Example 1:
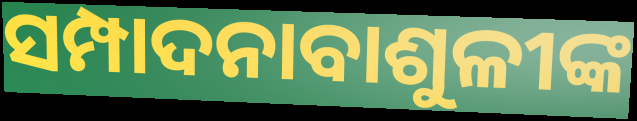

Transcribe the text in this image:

ସମ୍ପାଦନାବାଶୁଳୀଙ୍କ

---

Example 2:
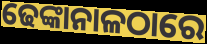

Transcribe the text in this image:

ଢେଙ୍କାନାଳଠାରେ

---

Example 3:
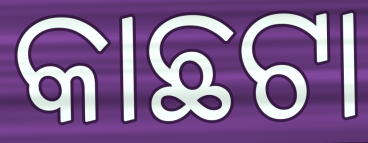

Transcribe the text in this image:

କାଛଟା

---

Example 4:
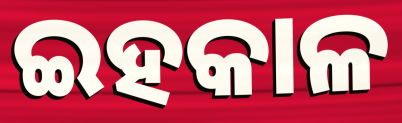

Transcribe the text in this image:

ଇହକାଳ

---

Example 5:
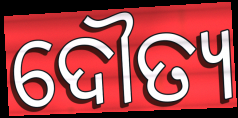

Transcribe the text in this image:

ଦୌତ୍ୟ